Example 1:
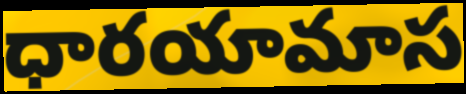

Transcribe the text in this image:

ధారయామాస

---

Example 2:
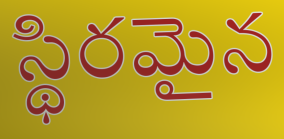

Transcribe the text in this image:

స్థిరమైన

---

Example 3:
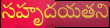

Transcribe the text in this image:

సహృదయతని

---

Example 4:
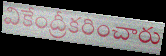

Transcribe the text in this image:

వికేంద్రీకరించారు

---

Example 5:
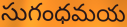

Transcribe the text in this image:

సుగంధమయ